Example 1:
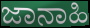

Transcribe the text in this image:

ಜಾನಾಹಿ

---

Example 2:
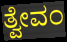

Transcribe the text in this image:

ತ್ವೇವಂ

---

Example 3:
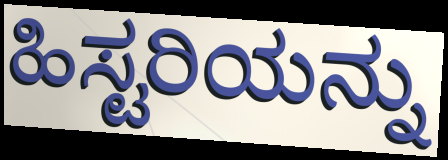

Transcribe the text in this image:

ಹಿಸ್ಟರಿಯನ್ನು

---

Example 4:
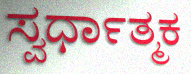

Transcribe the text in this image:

ಸ್ವರ್ಧಾತ್ಮಕ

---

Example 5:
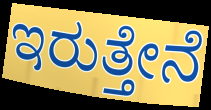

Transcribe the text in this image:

ಇರುತ್ತೇನೆ